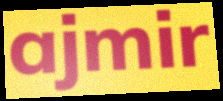
ajmir